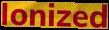
Ionized